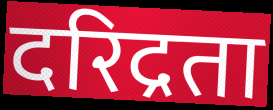
दरिद्रता